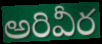
అరివీర